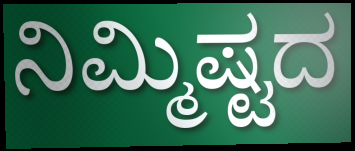
ನಿಮ್ಮಿಷ್ಟದ